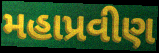
મહાપ્રવીણ